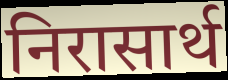
निरासार्थ